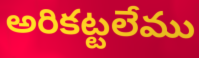
అరికట్టలేము